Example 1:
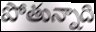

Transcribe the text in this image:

పోతున్నాది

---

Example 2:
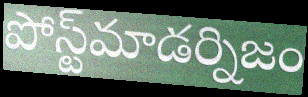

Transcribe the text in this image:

పోస్ట్‌మాడర్నిజం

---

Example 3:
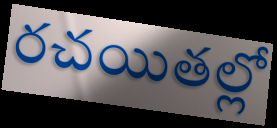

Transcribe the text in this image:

రచయితల్లో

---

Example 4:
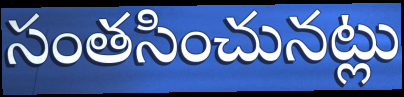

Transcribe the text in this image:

సంతసించునట్లు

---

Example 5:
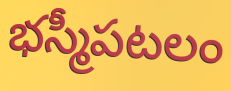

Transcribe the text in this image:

భస్మీపటలం